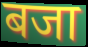
बजा